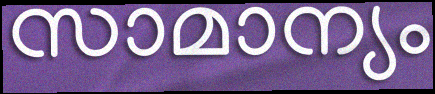
സാമാന്യം